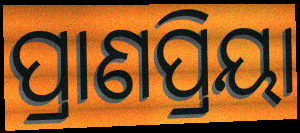
ପ୍ରାଣପ୍ରିୟା